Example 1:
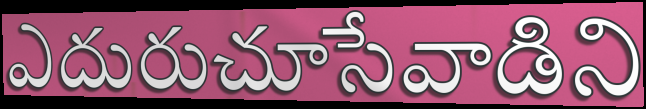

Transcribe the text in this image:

ఎదురుచూసేవాడిని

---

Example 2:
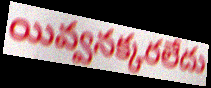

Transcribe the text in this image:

యివ్వనక్కరలేదు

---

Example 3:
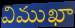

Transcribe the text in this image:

విముఖా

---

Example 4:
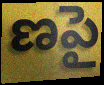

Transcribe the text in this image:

ణపై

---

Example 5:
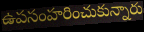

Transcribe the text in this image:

ఉపసంహరించుకున్నారు